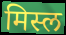
मिस्ल